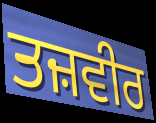
ਤਜ਼ਵੀਰ